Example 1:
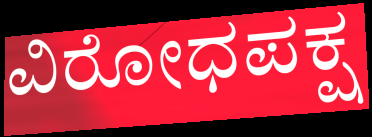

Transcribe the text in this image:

ವಿರೋಧಪಕ್ಷ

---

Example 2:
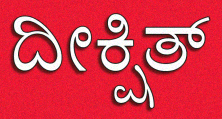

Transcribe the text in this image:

ದೀಕ್ಷಿತ್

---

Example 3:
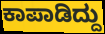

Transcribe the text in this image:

ಕಾಪಾಡಿದ್ದು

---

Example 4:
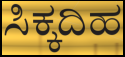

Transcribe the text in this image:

ಸಿಕ್ಕದಿಹ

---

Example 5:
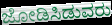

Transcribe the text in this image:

ಜೋಡಿಸಿಡುವರು